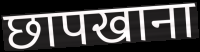
छापखाना